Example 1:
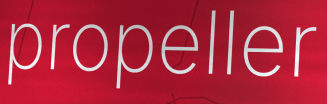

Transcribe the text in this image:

propeller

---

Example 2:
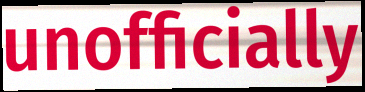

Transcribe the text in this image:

unofficially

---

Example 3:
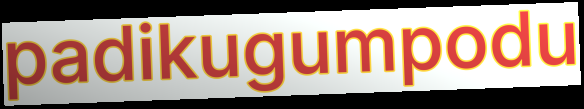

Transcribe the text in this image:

padikugumpodu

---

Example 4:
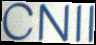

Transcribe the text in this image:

CNII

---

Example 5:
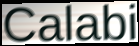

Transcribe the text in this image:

Calabi